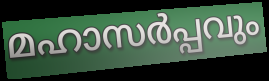
മഹാസർപ്പവും